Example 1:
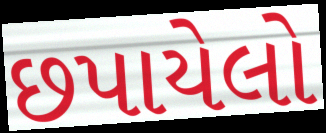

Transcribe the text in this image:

છપાયેલો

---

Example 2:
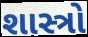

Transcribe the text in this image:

શાસ્ત્રો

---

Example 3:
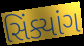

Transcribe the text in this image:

સિંક્યાંગ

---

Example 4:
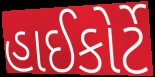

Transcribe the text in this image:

હાઈકોર્ટે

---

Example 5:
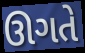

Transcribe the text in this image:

ઊગતે